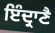
ਇੰਦ੍ਰਾਣੈ